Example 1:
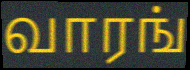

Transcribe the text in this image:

வாரங்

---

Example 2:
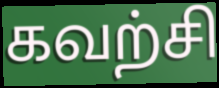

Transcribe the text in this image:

கவற்சி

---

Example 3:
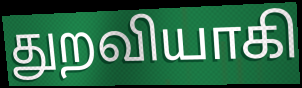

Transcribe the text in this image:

துறவியாகி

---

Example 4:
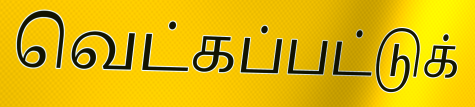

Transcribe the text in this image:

வெட்கப்பட்டுக்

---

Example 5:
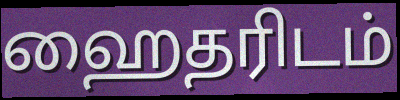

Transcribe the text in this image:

ஹைதரிடம்